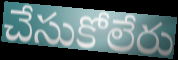
చేసుకోలేరు